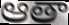
ఆతా